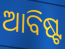
ଆବିଷ୍ଟ